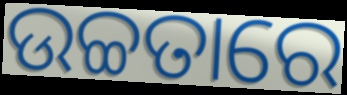
ଉଚ୍ଚତାରେ